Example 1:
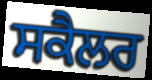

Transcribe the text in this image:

ਸਕੈਲਰ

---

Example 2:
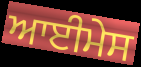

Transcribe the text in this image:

ਆਈਮੇਸ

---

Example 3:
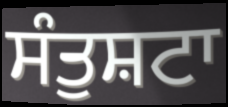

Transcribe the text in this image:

ਸੰਤੁਸ਼ਟਾ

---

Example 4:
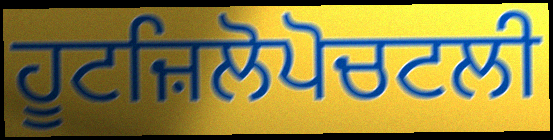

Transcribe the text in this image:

ਹੂਟਜ਼ਿਲੋਪੋਚਟਲੀ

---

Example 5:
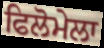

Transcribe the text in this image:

ਫਿਲੋਮੇਲਾ